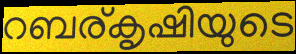
റബര്കൃഷിയുടെ